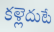
కళ్లెదుటే